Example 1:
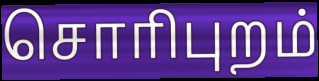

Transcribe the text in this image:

சொரிபுறம்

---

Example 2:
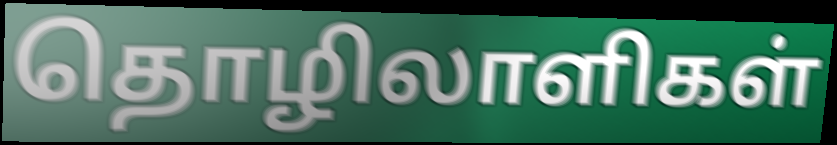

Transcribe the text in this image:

தொழிலாளிகள்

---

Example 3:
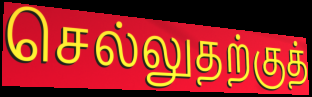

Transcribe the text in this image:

செல்லுதற்குத்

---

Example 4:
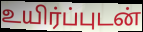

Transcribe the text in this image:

உயிர்ப்புடன்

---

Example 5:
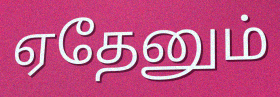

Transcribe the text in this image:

ஏதேனும்